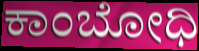
ಕಾಂಬೋಧಿ